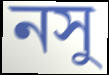
নসু